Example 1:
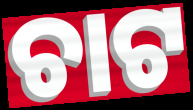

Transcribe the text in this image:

ଚାଟ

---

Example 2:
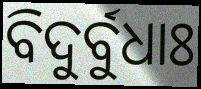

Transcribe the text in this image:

ବିଦୁର୍ବୁଧାଃ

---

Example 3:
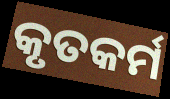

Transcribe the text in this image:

କୃତକର୍ମ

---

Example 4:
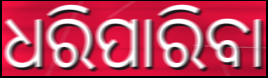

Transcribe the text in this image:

ଧରିପାରିବା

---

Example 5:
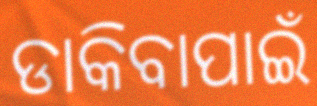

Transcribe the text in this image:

ଡାକିବାପାଇଁ